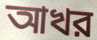
আখর